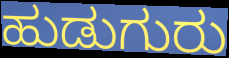
ಹುಡುಗುರು